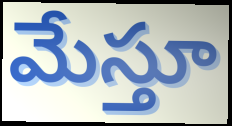
మేస్తూ